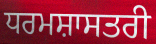
ਧਰਮਸ਼ਾਸਤਰੀ